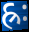
હ્રઃ